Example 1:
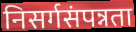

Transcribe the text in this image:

निसर्गसंपन्नता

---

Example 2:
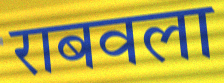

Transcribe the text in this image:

राबवला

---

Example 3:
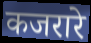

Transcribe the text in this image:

कजरारे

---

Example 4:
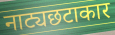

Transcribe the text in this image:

नाट्यछटाकार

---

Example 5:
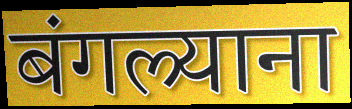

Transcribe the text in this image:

बंगल्याना